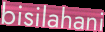
bisilahani